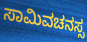
ಸಾಮಿವಚನಸ್ಸ